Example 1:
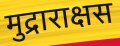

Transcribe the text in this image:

मुद्राराक्षस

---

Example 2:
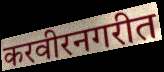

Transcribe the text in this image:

करवीरनगरीत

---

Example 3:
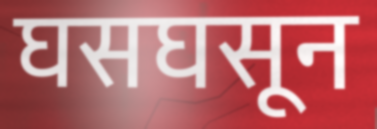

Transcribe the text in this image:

घसघसून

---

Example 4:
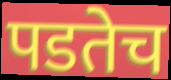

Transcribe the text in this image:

पडतेच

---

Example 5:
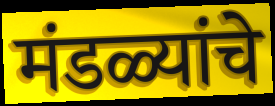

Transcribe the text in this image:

मंडळ्यांचे